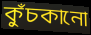
কুঁচকানো